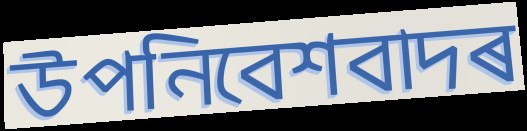
উপনিবেশবাদৰ